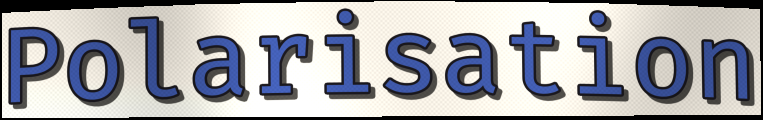
Polarisation